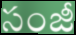
సంజీ